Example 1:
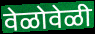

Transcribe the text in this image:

वेळोवेळी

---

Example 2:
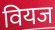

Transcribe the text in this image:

वियज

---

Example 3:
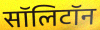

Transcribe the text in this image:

सॉलिटॉन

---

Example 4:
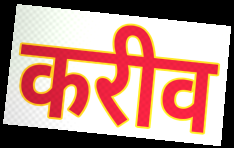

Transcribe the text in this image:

करीव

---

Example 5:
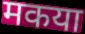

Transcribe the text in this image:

मकया